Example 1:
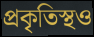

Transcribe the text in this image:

প্রকৃতিস্থও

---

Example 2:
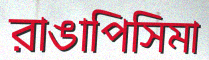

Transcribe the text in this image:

রাঙাপিসিমা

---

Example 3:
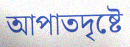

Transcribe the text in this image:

আপাতদৃষ্টে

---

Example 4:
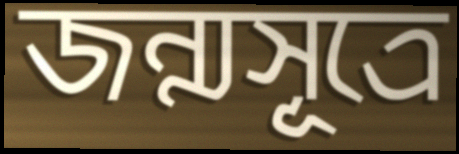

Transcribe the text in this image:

জন্মসূত্রে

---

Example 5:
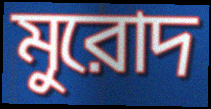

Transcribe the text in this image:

মুরোদ